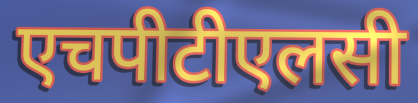
एचपीटीएलसी